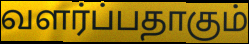
வளர்ப்பதாகும்